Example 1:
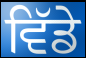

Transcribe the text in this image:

ਵਿੱਡੇ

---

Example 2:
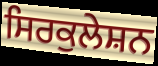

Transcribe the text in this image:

ਸਿਰਕੁਲੇਸ਼ਨ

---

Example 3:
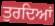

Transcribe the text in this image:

ਤੁਰਦਿਆਂ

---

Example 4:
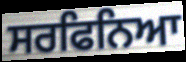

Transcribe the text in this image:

ਸਰਫਿਨਿਆ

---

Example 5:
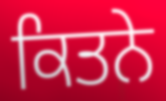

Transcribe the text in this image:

ਕਿਤਨੇ